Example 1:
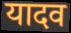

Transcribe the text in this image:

यादव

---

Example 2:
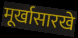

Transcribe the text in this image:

मूर्खासारखे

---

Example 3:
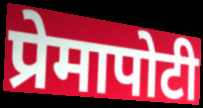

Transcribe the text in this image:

प्रेमापोटी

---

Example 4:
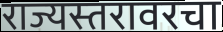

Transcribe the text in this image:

राज्यस्तरावरचा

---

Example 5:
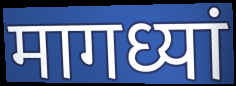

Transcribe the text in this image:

मागध्यां